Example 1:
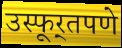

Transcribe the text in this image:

उस्फूर्तपणे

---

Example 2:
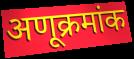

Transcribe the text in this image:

अणूक्रमांक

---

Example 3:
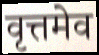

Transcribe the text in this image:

वृत्तमेव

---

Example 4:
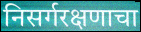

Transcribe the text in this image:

निसर्गरक्षणाचा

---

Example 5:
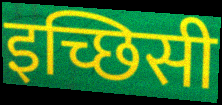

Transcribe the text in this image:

इच्छिसी